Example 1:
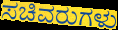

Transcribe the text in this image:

ಸಚಿವರುಗಳು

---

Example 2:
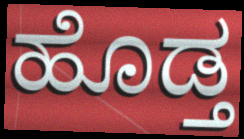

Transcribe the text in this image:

ಹೊಡ್ತ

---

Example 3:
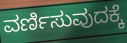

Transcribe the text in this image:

ವರ್ಣಿಸುವುದಕ್ಕೆ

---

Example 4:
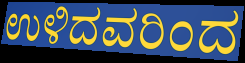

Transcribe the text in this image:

ಉಳಿದವರಿಂದ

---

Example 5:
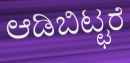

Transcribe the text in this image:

ಆಡಿಬಿಟ್ಟರೆ